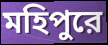
মহিপুরে